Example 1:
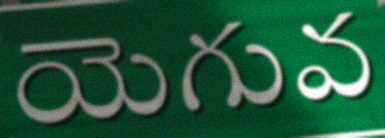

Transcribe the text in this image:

యెగువ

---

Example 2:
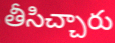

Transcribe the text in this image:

తీసిచ్చారు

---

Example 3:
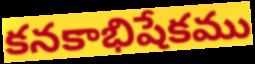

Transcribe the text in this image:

కనకాభిషేకము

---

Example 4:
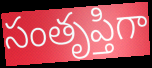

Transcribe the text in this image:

సంతృప్తిగా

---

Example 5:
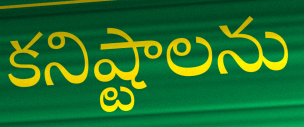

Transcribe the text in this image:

కనిష్టాలను